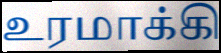
உரமாக்கி